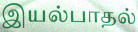
இயல்பாதல்